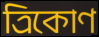
ত্রিকোণ